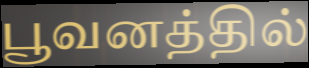
பூவனத்தில்